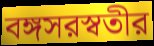
বঙ্গসরস্বতীর